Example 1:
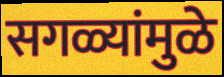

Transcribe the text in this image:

सगळ्यांमुळे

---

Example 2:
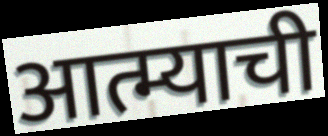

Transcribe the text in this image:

आत्म्याची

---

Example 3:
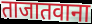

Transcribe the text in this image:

ताजातवाना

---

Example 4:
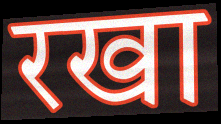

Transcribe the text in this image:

रखा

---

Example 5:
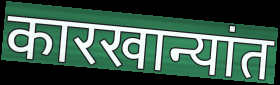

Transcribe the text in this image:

कारखान्यांत